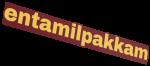
entamilpakkam